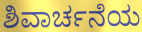
ಶಿವಾರ್ಚನೆಯ